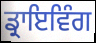
ਡ੍ਰਾਇਵਿੰਗ